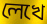
লেখে